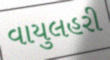
વાયુલહરી